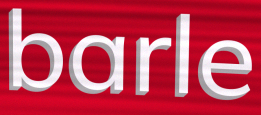
barle